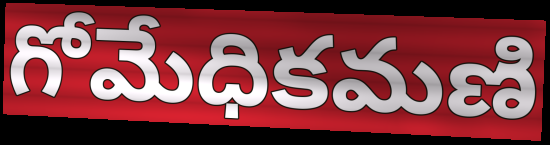
గోమేధికమణి